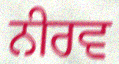
ਨੀਰਵ